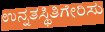
ಉನ್ನತಸ್ಥಿತಿಗೇರಿಸು